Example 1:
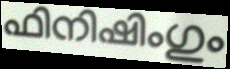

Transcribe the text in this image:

ഫിനിഷിംഗും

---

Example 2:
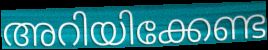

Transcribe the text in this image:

അറിയിക്കേണ്ട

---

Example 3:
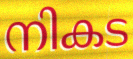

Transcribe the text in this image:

നികട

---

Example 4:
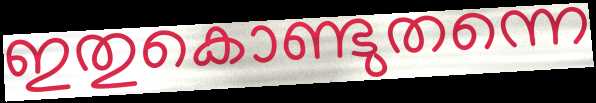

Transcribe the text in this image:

ഇതുകൊണ്ടുതന്നെ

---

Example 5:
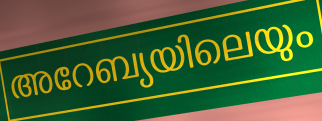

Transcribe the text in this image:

അറേബ്യയിലെയും